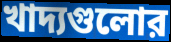
খাদ্যগুলোর